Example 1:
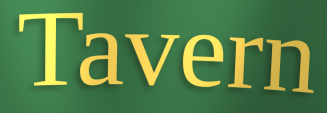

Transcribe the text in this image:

Tavern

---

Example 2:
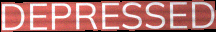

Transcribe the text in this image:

DEPRESSED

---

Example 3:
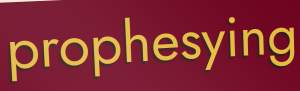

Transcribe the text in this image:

prophesying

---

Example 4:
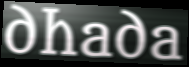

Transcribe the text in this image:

dhada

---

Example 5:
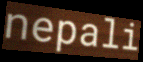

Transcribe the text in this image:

nepali